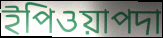
ইপিওয়াপদা